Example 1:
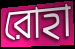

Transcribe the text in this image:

রোহা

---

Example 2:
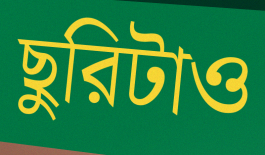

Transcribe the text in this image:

ছুরিটাও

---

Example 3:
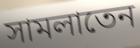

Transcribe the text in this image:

সামলাতেন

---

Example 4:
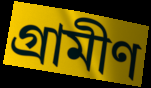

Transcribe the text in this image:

গ্রামীণ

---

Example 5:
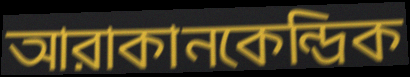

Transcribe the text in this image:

আরাকানকেন্দ্রিক